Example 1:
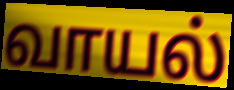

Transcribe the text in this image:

வாயல்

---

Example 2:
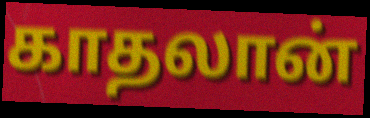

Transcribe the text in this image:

காதலான்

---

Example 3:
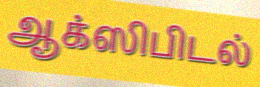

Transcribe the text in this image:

ஆக்ஸிபிடல்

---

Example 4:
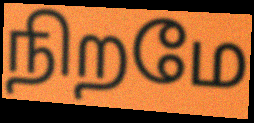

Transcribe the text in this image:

நிறமே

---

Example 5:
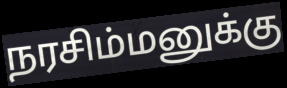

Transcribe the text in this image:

நரசிம்மனுக்கு